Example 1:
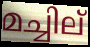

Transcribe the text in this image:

മച്ചില്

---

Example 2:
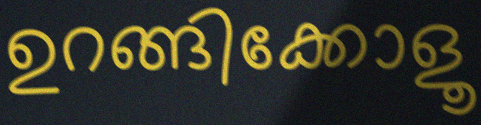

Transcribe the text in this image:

ഉറങ്ങിക്കോളൂ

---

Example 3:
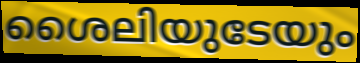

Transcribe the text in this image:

ശൈലിയുടേയും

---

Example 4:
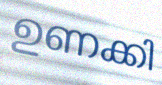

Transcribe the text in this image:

ഉണക്കി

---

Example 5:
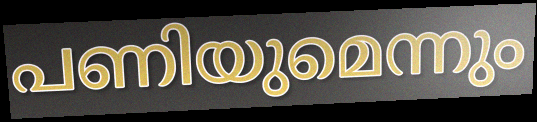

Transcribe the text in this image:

പണിയുമെന്നും